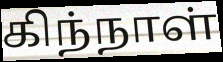
கிந்நாள்